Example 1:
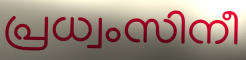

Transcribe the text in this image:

പ്രധ്വംസിനീ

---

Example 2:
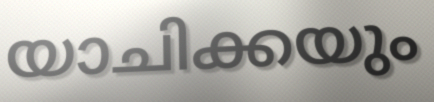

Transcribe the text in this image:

യാചിക്കയും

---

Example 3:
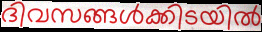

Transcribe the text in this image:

ദിവസങ്ങൾക്കിടയിൽ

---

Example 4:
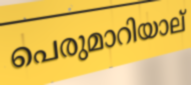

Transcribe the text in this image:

പെരുമാറിയാല്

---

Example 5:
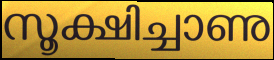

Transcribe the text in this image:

സൂക്ഷിച്ചാണു